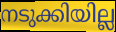
നടുക്കിയില്ല